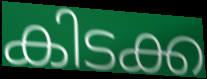
കിടക്ക